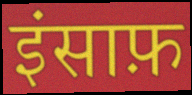
इंसाफ़